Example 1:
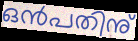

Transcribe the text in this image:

ഒൻപതിനു്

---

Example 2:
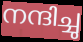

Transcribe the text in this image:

നന്ദിച്ചു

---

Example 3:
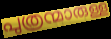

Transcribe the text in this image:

പുത്രന്മാരുള്ള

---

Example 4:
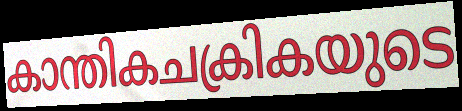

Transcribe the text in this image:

കാന്തികചക്രികയുടെ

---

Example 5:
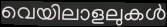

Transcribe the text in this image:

വെയിലാളലുകൾ